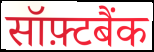
सॉफ़्टबैंक